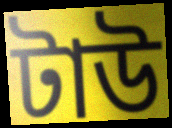
টাউ